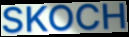
SKOCH